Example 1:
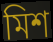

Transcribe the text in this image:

মিশ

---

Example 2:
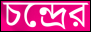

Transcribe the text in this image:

চন্দ্রের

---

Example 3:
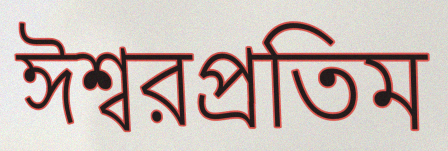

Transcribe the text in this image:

ঈশ্বরপ্রতিম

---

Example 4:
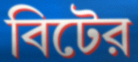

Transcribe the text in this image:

বিটের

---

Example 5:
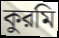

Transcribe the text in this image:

কুরমি